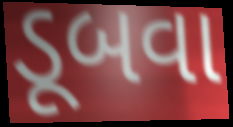
ડૂબવા